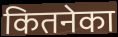
कितनेका